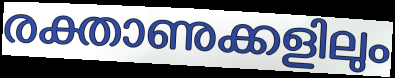
രക്താണുക്കളിലും